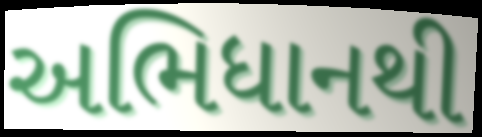
અભિધાનથી